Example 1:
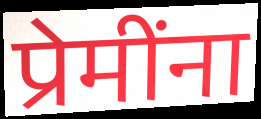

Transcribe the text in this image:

प्रेमींना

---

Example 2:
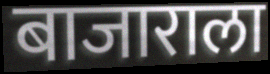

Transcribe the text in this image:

बाजाराला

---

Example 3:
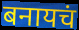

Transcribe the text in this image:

बनायचं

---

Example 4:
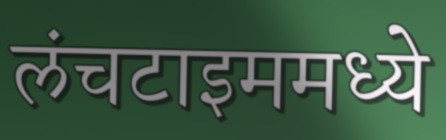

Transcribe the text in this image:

लंचटाइममध्ये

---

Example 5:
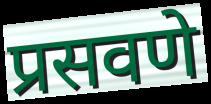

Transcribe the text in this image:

प्रसवणे